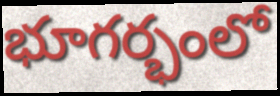
భూగర్భంలో